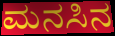
ಮನಸಿನ